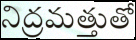
నిద్రమత్తుతో